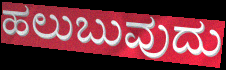
ಹಲುಬುವುದು